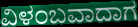
ವಿಳಂಬವಾದಾಗ